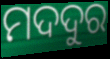
ମଦଦୁର